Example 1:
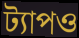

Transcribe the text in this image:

ট্যাপও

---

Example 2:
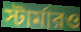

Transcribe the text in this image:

স্টার্মারও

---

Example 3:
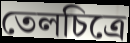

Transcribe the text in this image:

তেলচিত্রে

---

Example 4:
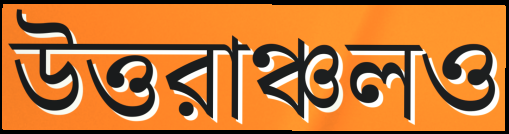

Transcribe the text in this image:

উত্তরাঞ্চলও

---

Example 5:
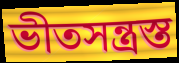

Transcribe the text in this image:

ভীতসন্ত্রস্ত